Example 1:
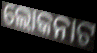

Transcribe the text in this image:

ଲୋକନାଟ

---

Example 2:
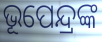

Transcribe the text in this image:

ଭୂପେନ୍ଦ୍ରଙ୍କ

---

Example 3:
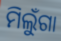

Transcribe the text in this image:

ମିଲୁଁଗା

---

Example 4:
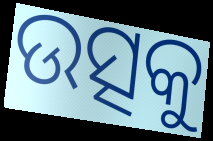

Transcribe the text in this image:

ଉତ୍ସକୁ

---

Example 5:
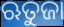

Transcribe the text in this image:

ଋତୁଜା